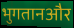
भुगतानऔर